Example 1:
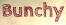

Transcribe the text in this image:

Bunchy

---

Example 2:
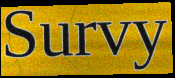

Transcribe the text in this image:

Survy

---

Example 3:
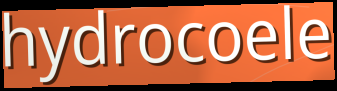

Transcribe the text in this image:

hydrocoele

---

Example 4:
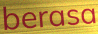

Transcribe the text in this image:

berasa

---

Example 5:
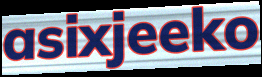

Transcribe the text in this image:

asixjeeko